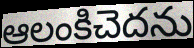
ఆలంకిచెదను